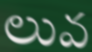
లువ